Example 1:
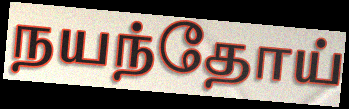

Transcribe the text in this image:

நயந்தோய்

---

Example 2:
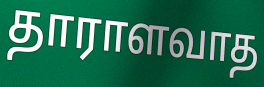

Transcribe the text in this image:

தாராளவாத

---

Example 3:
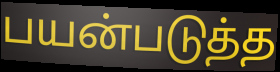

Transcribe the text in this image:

பயன்படுத்த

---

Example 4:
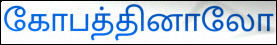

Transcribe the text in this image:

கோபத்தினாலோ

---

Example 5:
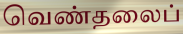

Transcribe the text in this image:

வெண்தலைப்